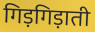
गिड़गिड़ाती